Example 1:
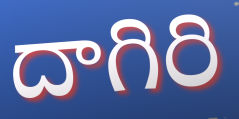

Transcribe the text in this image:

దాగిరి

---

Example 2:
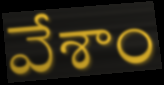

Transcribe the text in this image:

వేశాం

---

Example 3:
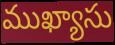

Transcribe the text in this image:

ముఖ్యాసు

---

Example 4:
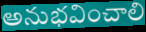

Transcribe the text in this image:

అనుభవించాలి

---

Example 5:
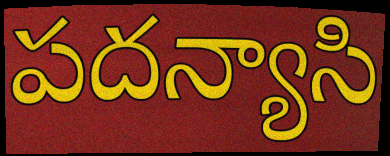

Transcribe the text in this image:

పదన్యాసి